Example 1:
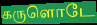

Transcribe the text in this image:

கருளொடே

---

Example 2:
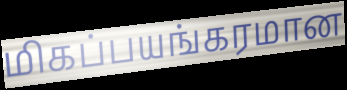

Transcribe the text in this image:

மிகப்பயங்கரமான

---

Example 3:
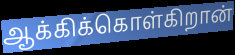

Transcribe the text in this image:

ஆக்கிக்கொள்கிறான்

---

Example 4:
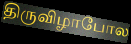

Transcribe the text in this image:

திருவிழாபோல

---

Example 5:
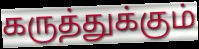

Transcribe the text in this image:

கருத்துக்கும்